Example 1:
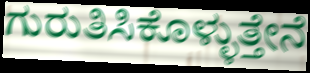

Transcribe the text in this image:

ಗುರುತಿಸಿಕೊಳ್ಳುತ್ತೇನೆ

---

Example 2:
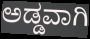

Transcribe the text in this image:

ಅಡ್ಡವಾಗಿ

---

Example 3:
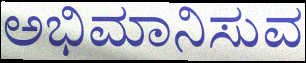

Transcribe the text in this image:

ಅಭಿಮಾನಿಸುವ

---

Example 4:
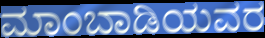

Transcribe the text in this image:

ಮಾಂಬಾಡಿಯವರ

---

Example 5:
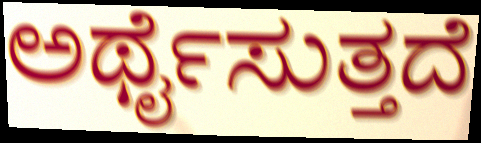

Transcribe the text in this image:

ಅರ್ಥೈಸುತ್ತದೆ